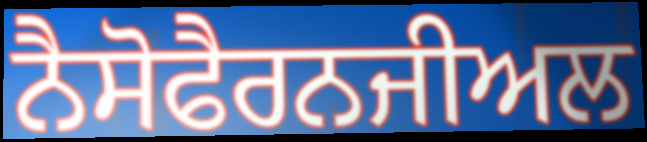
ਨੈਸੋਫੈਰਨਜੀਅਲ